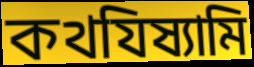
কথযিষ্যামি